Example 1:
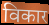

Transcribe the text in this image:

विकार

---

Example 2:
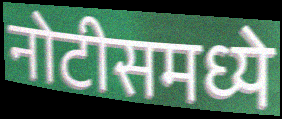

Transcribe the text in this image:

नोटीसमध्ये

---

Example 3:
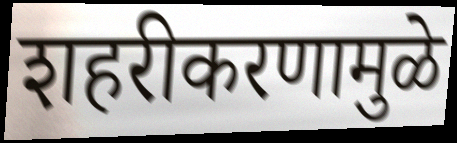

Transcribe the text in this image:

शहरीकरणामुळे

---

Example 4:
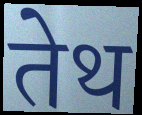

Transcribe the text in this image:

तेथ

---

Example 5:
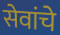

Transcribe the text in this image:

सेवांचे